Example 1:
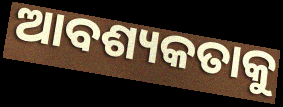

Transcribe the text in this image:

ଆବଶ୍ୟକତାକୁ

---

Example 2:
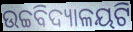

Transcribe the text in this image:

ଉଚ୍ଚବିଦ୍ୟାଳୟଟି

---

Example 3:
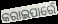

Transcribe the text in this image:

କରାଇପାରେଁ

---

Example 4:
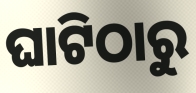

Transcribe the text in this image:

ଘାଟିଠାରୁ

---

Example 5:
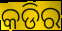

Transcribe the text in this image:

କଡିର